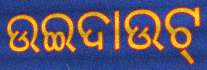
ଉଇଦାଉଟ୍